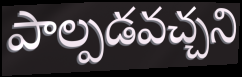
పాల్పడవచ్చని